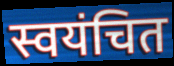
स्वयंचित